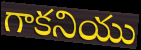
గాకనియు